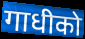
गाधीको